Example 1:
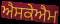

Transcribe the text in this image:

ਐਸਕੇਐਮ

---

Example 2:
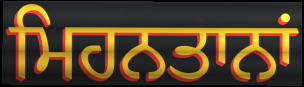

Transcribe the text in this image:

ਮਿਹਨਤਾਨਾਂ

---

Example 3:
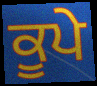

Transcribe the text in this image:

ਕੂਪੇ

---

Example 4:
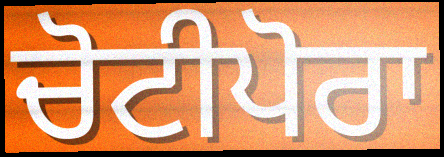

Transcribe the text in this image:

ਚੋਟੀਪੋਰਾ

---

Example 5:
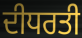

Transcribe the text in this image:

ਦੀਧਰਤੀ